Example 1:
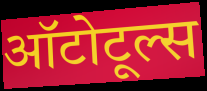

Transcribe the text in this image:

ऑटोटूल्स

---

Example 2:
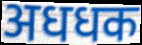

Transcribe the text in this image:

अधधक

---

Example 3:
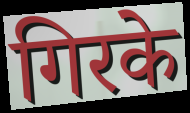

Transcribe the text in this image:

गिरके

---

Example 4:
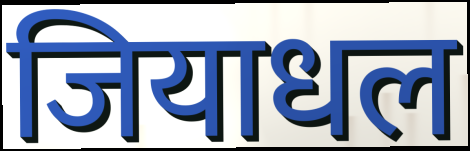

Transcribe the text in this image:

जियाधल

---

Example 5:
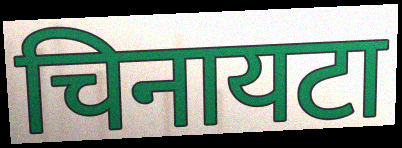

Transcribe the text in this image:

चिनायटा